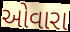
ઓવારા